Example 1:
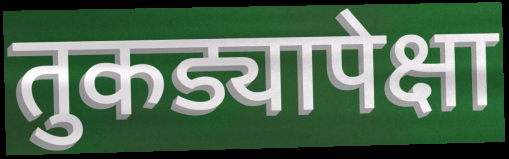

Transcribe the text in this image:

तुकड्यापेक्षा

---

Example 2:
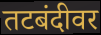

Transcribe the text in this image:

तटबंदीवर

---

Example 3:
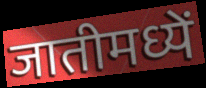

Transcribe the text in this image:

जातीमध्यें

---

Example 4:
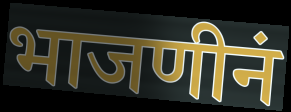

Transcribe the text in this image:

भाजणीनं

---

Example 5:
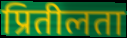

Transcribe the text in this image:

प्रितीलता